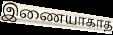
இணையாகாத